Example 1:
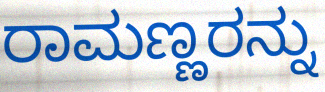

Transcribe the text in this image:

ರಾಮಣ್ಣರನ್ನು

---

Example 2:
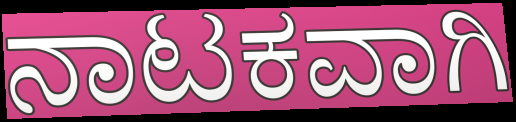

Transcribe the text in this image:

ನಾಟಕವಾಗಿ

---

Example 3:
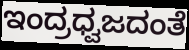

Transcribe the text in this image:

ಇಂದ್ರಧ್ವಜದಂತೆ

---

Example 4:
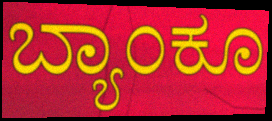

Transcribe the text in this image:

ಬ್ಯಾಂಕೂ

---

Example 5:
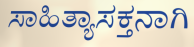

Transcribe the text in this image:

ಸಾಹಿತ್ಯಾಸಕ್ತನಾಗಿ